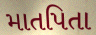
માતપિતા